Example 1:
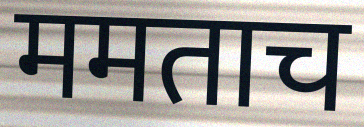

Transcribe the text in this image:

ममताच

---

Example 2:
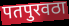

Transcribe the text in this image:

पतपुरवठा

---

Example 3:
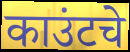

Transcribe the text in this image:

काउंटचे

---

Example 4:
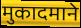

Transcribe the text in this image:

मुकादमाने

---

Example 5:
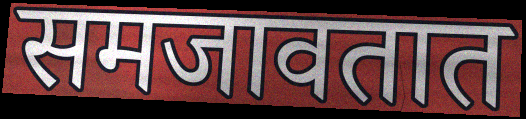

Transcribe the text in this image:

समजावतात